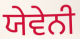
ਯੇਵੇਨੀ